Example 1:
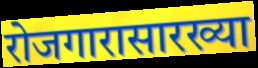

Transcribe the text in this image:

रोजगारासारख्या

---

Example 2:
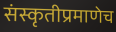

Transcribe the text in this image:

संस्कृतीप्रमाणेच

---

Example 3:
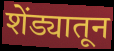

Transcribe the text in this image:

शेंड्यातून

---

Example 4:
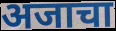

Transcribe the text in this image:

अजाचा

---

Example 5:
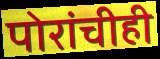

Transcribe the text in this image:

पोरांचीही